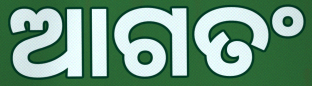
ଆଗତଂ